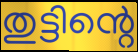
തുട്ടിന്റെ